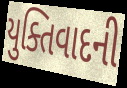
યુક્તિવાદની